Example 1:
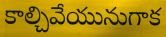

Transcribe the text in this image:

కాల్చివేయునుగాక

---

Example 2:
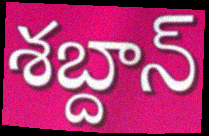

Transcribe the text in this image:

శబ్దాన్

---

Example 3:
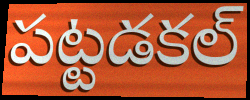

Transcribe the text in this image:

పట్టడకల్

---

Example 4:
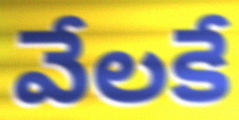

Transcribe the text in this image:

వేలకే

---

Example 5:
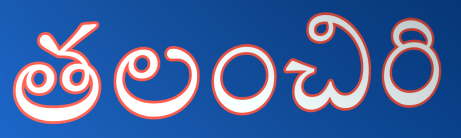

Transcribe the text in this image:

తలంచిరి